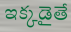
ఇక్కడైతే